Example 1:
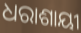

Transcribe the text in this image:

ଧରାଶାୟୀ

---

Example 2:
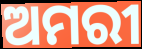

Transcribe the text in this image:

ଅମରୀ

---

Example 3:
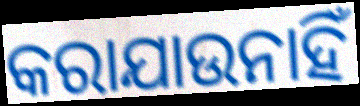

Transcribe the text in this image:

କରାଯାଉନାହିଁ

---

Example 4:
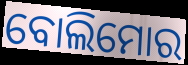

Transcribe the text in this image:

ବୋଲିମୋର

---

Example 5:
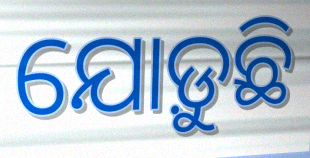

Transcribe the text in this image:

ଯୋଡ଼ୁଛି